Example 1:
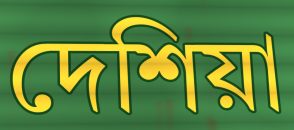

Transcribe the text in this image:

দেশিয়া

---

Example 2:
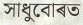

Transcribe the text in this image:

সাধুবোৰত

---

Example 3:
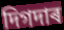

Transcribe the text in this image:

দিগদাৰ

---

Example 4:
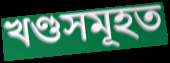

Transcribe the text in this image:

খণ্ডসমূহত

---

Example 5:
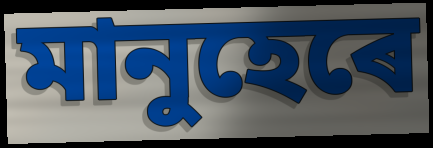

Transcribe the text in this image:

মানুহেৰে